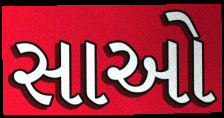
સાઓ